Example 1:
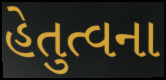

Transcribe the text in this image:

હેતુત્વના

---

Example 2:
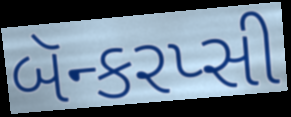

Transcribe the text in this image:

બૅન્કરપ્સી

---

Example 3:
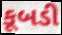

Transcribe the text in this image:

કૂબડી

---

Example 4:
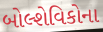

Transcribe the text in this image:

બોલ્શેવિકોના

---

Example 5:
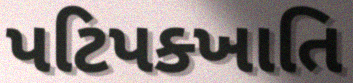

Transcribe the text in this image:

પટિપક્ખાતિ